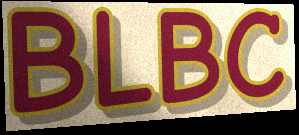
BLBC